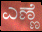
ಎಣ್ಣೆ